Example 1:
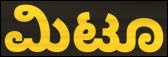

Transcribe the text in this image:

ಮಿಟೂ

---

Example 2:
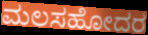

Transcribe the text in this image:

ಮಲಸಹೋದರ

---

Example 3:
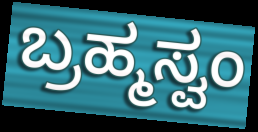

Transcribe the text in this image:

ಬ್ರಹ್ಮಸ್ವಂ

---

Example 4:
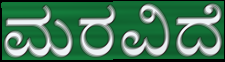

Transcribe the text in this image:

ಮರವಿದೆ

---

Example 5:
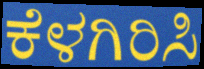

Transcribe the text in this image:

ಕೆಳಗಿರಿಸಿ